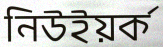
নিউইয়ৰ্ক